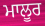
ਮਾਲੂਰ